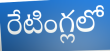
రేటింగ్లలో